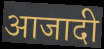
आजादी